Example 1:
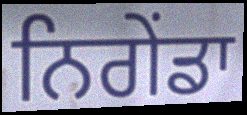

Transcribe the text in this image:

ਨਿਗੇਂਡਾ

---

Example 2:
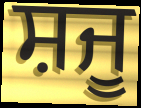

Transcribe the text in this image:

ਸ਼ਜੂ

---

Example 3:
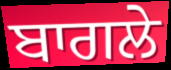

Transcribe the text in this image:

ਬਾਗਲੇ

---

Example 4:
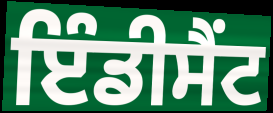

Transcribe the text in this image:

ਇੰਡੀਸੈਂਟ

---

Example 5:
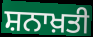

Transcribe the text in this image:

ਸ਼ਨਾਖ਼ਤੀ